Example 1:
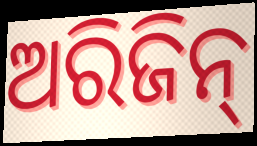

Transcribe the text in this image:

ଅରିଜିନ୍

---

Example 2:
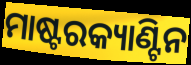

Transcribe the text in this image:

ମାଷ୍ଟରକ୍ୟାଣ୍ଟିନ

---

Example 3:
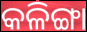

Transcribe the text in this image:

କଳିଙ୍ଗା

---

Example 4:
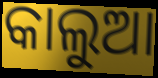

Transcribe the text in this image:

କାଲୁଆ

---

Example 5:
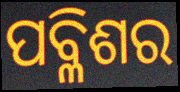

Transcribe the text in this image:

ପବ୍ଳିଶର